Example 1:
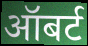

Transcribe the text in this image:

ऑबर्ट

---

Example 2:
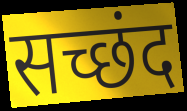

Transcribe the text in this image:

सच्छंद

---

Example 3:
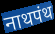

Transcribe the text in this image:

नाथपंथ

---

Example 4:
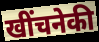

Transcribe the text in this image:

खींचनेकी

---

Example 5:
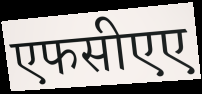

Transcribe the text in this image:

एफसीएए